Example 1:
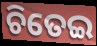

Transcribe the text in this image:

ଚିତେଇ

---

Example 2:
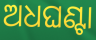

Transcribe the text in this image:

ଅଧଘଣ୍ଟା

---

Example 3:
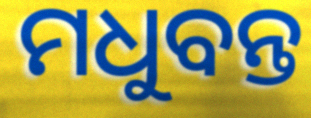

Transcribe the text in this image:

ମଧୁବନ୍ତ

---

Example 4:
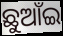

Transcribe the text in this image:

ଛୁଆଁଇ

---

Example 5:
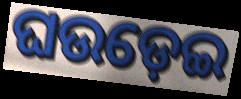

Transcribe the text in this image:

ଘଉଡ଼େଇ